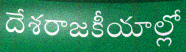
దేశరాజకీయాల్లో